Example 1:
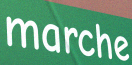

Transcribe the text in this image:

marche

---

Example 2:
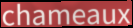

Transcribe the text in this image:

chameaux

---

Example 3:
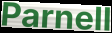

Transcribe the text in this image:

Parnell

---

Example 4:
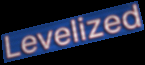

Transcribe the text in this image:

Levelized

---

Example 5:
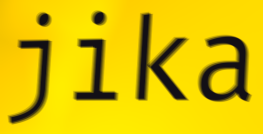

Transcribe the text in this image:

jika